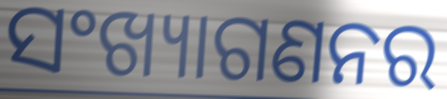
ସଂଖ୍ୟାଗଣନର